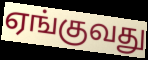
ஏங்குவது